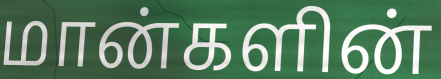
மான்களின்